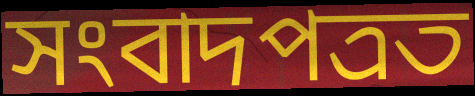
সংবাদপত্ৰত